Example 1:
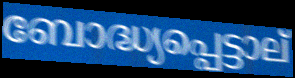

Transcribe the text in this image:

ബോദ്ധ്യപ്പെട്ടാല്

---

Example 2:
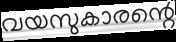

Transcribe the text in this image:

വയസുകാരന്റെ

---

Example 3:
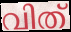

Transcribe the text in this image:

വിത്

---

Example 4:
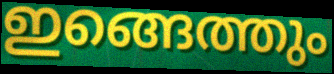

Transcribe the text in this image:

ഇങ്ങെത്തും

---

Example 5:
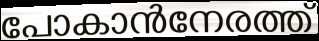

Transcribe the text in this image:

പോകാൻനേരത്ത്